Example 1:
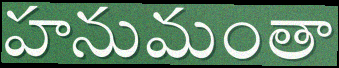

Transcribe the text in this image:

హనుమంతా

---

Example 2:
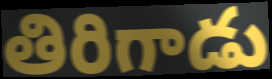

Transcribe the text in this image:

తిరిగాడు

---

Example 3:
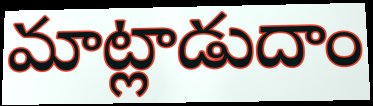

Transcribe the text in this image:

మాట్లాడుదాం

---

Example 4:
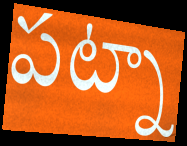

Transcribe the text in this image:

పట్నా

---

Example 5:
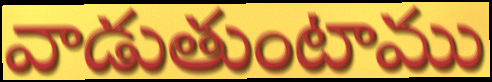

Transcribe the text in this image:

వాడుతుంటాము